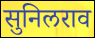
सुनिलराव